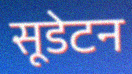
सूडेटन